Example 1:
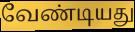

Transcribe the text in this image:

வேண்டியது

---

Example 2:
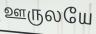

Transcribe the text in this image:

ஊருலயே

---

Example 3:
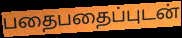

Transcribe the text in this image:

பதைபதைப்புடன்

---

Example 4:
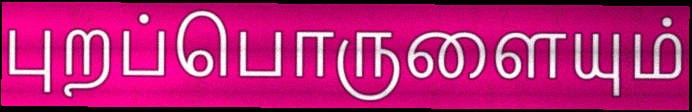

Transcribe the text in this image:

புறப்பொருளையும்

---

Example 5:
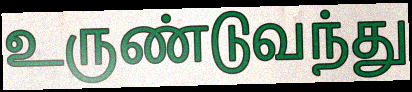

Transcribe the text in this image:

உருண்டுவந்து